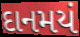
દાનમયં